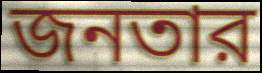
জনতার